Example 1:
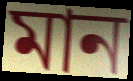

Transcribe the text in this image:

মান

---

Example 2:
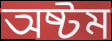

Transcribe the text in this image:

অষ্টম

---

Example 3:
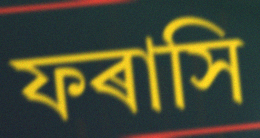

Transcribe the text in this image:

ফৰাসি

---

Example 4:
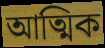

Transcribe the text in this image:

আত্মিক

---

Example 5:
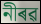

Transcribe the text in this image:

নীৰৱ